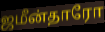
ஜமீன்தாரோ